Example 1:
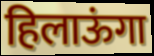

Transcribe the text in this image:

हिलाऊंगा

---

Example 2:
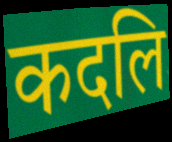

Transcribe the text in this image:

कदलि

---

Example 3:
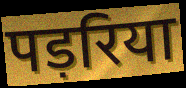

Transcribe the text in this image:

पड़रिया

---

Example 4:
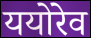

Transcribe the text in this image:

ययोरेव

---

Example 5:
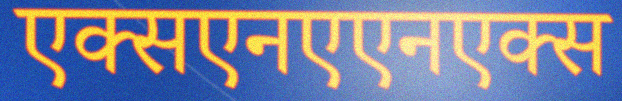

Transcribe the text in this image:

एक्सएनएएनएक्स